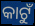
କାଟୁଁ